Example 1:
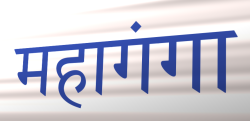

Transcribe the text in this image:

महागंगा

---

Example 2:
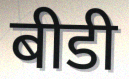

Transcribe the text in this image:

बीडी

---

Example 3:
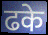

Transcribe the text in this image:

ढके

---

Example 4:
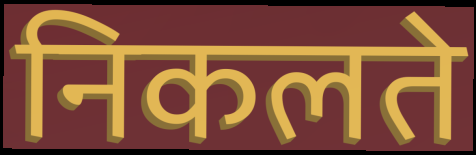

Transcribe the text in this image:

निकलते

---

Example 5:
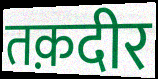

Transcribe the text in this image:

तक़दीर